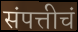
संपत्तीचं